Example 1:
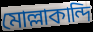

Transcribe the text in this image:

মোল্লাকান্দি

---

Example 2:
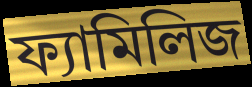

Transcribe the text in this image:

ফ্যামিলিজ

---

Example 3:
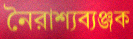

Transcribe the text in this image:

নৈরাশ্যব্যঞ্জক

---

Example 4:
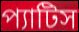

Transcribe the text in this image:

প্যাটিস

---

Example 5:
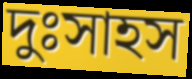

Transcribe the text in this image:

দুঃসাহস